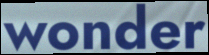
wonder